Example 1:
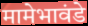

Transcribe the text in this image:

मामेभावंडे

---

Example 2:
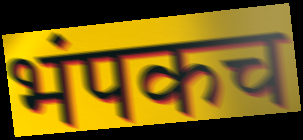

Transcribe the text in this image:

भंपकच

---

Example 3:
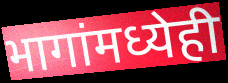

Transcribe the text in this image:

भागांमध्येही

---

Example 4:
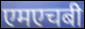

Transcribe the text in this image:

एमएचबी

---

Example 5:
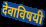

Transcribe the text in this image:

देवाविषयी